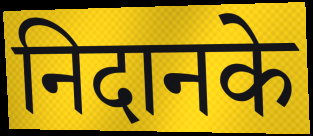
निदानके